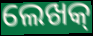
ଲେଖକ୍